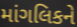
માંગલિકને